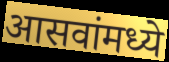
आसवांमध्ये